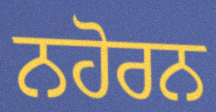
ਨਹੋਰਨ